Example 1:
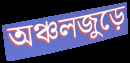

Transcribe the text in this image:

অঞ্চলজুড়ে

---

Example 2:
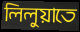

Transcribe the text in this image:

লিলুয়াতে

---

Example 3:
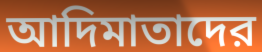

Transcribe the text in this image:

আদিমাতাদের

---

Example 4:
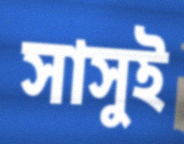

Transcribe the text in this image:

সাসুই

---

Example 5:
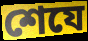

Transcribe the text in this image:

শেযে